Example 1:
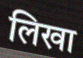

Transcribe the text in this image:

लिखा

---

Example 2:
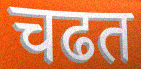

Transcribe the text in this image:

चढत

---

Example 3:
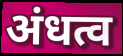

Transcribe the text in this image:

अंधत्व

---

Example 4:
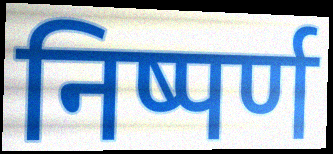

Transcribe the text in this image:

निष्पर्ण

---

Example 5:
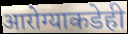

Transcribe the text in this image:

आरोग्याकडेही